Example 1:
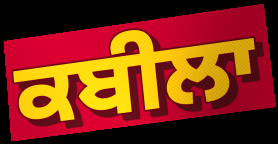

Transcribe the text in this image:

ਕਬੀਲਾ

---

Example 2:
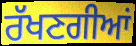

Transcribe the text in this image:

ਰੱਖਣਗੀਆਂ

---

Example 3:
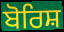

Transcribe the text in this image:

ਬੋਰਿਸ਼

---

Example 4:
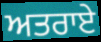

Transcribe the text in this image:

ਅਤਰਾਏ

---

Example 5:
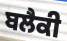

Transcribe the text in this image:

ਬਲੈਕੀ